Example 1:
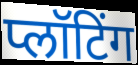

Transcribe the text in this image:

प्लॉटिंग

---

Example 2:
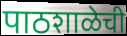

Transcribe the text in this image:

पाठशाळेची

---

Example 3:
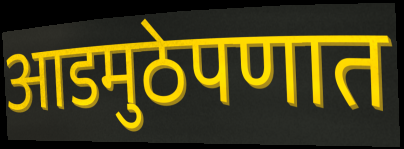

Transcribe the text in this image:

आडमुठेपणात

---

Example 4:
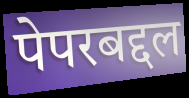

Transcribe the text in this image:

पेपरबद्दल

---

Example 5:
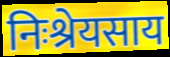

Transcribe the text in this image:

निःश्रेयसाय